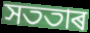
সততাৰ